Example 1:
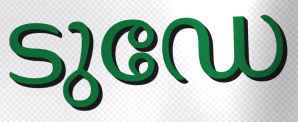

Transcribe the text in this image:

ടുഡേ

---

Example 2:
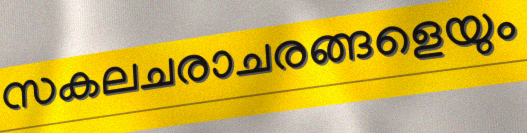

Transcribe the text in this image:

സകലചരാചരങ്ങളെയും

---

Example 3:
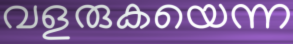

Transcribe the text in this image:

വളരുകയെന്ന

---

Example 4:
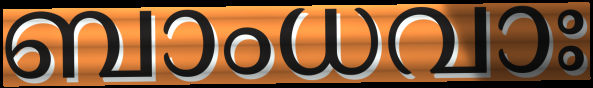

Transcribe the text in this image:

ബാംധവാഃ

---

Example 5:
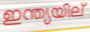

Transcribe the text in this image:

ഇന്ത്യയില്